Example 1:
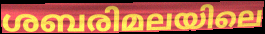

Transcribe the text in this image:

ശബരിമലയിലെ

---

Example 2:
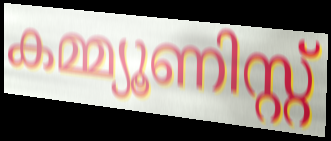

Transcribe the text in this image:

കമ്മ്യൂണിസ്റ്റ്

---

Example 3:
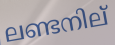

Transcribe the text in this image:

ലണ്ടനില്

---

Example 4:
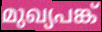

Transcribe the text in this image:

മുഖ്യപങ്ക്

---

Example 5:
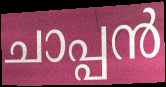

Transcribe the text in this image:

ചാപ്പൻ